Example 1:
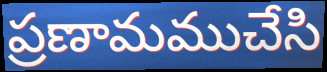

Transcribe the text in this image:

ప్రణామముచేసి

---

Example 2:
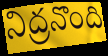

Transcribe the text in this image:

నిద్రనొంది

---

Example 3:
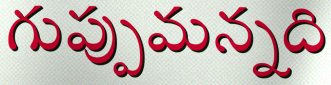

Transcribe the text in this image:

గుప్పుమన్నది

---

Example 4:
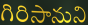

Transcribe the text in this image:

గిరిసానుని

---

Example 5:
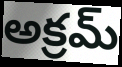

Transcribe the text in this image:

అక్రమ్